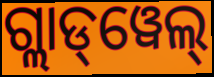
ଗ୍ଲାଡ୍‌ୱେଲ୍